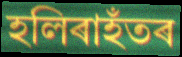
হলিৰাহঁতৰ